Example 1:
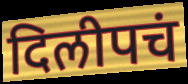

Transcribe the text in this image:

दिलीपचं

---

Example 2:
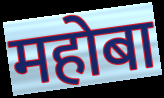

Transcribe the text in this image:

महोबा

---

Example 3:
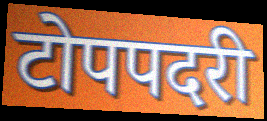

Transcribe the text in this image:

टोपपदरी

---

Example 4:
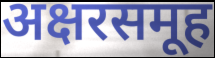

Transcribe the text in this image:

अक्षरसमूह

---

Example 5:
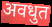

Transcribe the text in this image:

अवधुत